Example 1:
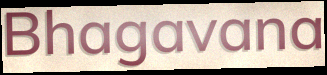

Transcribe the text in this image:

Bhagavana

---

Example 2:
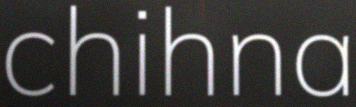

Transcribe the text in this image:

chihna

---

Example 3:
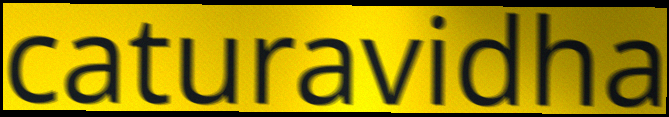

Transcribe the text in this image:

caturavidha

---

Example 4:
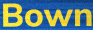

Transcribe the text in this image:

Bown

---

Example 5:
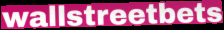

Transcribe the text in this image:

wallstreetbets